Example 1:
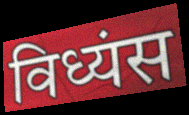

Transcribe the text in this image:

विध्यंस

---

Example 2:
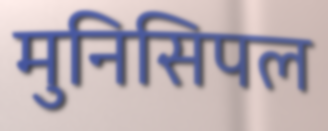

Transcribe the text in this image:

मुनिसिपल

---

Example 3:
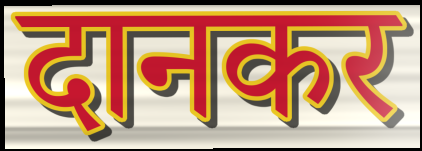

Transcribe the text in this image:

दानकर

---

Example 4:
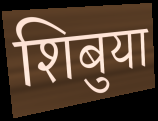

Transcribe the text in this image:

शिबुया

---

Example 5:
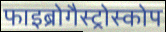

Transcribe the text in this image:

फाइब्रोगैस्ट्रोस्कोप